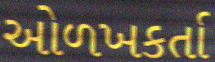
ઓળખકર્તા